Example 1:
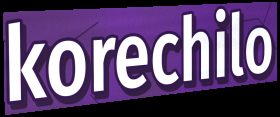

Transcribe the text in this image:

korechilo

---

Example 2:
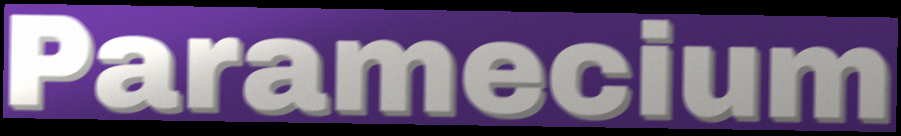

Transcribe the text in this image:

Paramecium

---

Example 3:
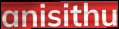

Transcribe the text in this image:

anisithu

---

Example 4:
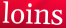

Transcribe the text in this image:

loins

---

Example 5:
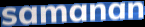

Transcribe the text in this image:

samanan